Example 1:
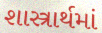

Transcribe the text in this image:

શાસ્ત્રાર્થમાં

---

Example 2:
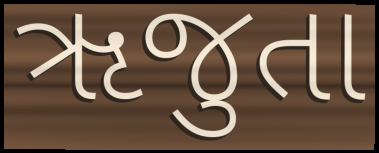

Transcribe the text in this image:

ૠજુતા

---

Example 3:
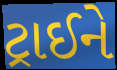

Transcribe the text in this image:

ટ્રાઈને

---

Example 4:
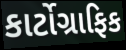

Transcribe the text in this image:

કાર્ટોગ્રાફિક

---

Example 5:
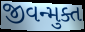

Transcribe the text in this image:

જીવન્મુક્ત